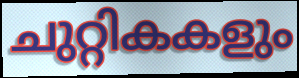
ചുറ്റികകളും